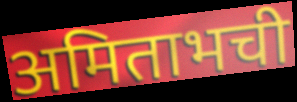
अमिताभची